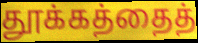
தூக்கத்தைத்